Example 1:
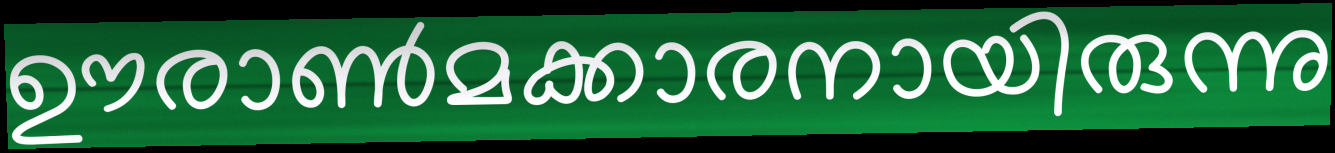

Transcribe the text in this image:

ഊരാൺമക്കാരനായിരുന്നു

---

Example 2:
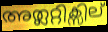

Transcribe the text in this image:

അത്ലറ്റിക്സില്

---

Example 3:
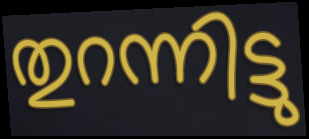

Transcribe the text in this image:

തുറന്നിട്ടു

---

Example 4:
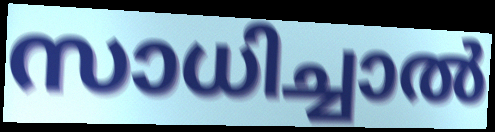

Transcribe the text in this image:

സാധിച്ചാൽ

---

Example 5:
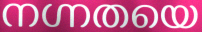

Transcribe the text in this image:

നഗ്നതയെ